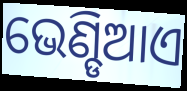
ଭେଣ୍ଡିଆଏ